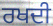
ਰਖਦੀ